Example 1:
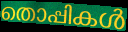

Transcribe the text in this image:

തൊപ്പികൾ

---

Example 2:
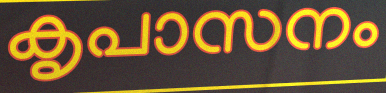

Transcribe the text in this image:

കൃപാസനം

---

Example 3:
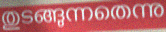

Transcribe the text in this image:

തുടങ്ങുന്നതെന്നു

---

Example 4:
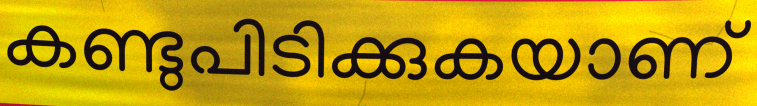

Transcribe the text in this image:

കണ്ടുപിടിക്കുകയാണ്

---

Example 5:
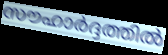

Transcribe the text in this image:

സൗഹാർദ്ദത്തിൽ